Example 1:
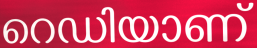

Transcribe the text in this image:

റെഡിയാണ്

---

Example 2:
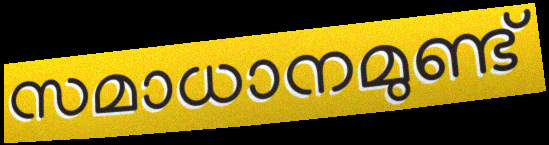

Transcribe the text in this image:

സമാധാനമുണ്ട്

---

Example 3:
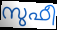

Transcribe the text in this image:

സുഫീ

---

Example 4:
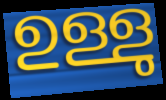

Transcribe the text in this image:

ഉള്ളു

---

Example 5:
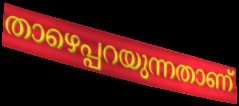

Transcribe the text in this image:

താഴെപ്പറയുന്നതാണ്